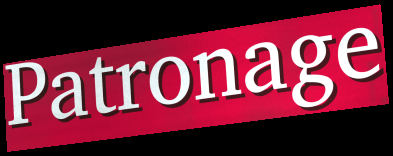
Patronage